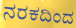
ನರಕದಿಂದ